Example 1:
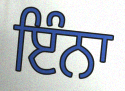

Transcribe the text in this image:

ਇੰਨਾ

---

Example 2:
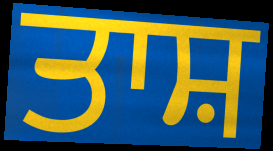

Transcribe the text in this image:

ਤਾਸ਼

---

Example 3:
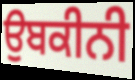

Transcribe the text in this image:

ਉਬਕੀਨੀ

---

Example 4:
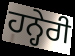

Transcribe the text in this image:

ਹਨ੍ਹੇਰੀ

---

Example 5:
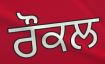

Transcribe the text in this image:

ਰੌਕਲ